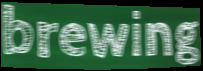
brewing